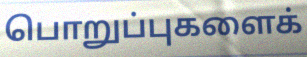
பொறுப்புகளைக்